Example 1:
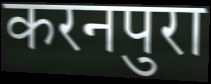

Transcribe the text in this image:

करनपुरा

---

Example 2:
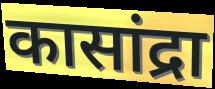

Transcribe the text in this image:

कासांद्रा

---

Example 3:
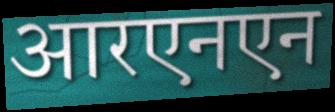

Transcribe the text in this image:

आरएनएन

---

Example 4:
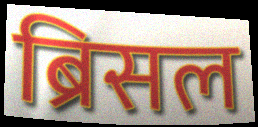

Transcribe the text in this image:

ब्रिसल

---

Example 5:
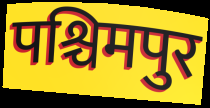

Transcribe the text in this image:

पश्चिमपुर